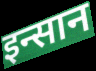
इन्सान